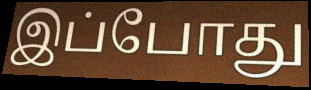
இப்போது